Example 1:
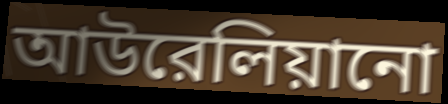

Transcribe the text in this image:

আউরেলিয়ানো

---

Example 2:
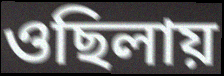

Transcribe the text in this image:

ওছিলায়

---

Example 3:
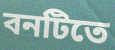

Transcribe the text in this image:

বনটিতে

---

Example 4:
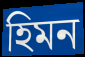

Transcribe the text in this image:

হিমন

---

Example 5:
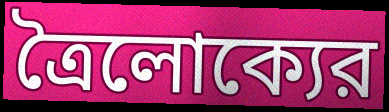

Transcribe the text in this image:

ত্রৈলোক্যের